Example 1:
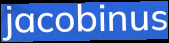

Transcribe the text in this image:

jacobinus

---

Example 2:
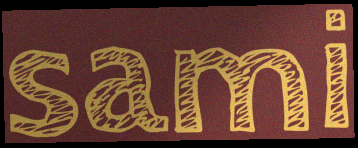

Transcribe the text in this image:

sami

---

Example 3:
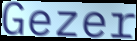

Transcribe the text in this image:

Gezer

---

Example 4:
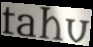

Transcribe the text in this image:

tahu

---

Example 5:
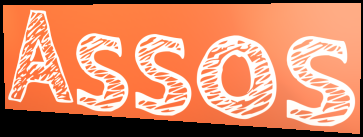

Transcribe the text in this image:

Assos